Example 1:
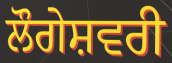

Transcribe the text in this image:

ਲੌਗੇਸ਼ਵਰੀ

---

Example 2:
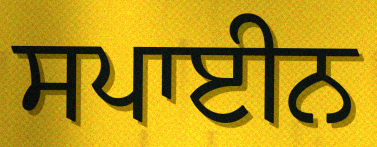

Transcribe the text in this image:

ਸਪਾਈਨ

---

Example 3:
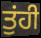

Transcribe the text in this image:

ਤੁਂਹੀ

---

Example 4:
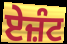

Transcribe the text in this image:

ਏਜ਼ੰਟ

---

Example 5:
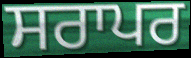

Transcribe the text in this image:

ਸਰਾਪਰ